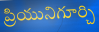
ప్రియునిగూర్చి